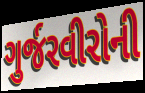
ગુર્જરવીરોની